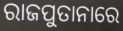
ରାଜପୁତାନାରେ